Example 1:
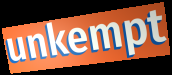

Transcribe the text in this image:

unkempt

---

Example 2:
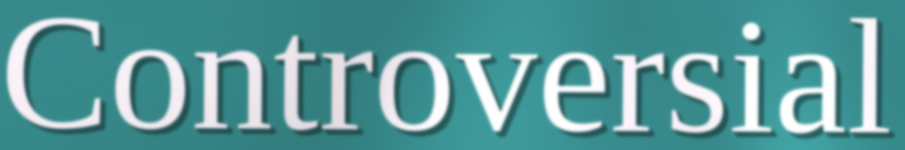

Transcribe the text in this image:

Controversial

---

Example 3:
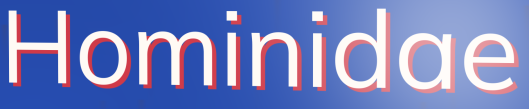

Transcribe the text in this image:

Hominidae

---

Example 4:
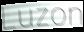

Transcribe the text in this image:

Luzon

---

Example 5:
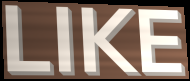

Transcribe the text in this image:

LIKE